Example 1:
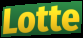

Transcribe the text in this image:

Lotte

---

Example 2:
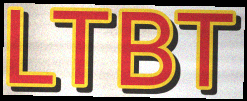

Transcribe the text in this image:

LTBT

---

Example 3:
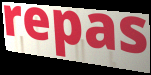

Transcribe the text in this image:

repas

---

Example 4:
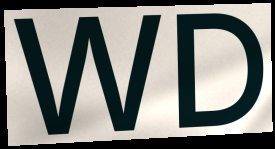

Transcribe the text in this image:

WD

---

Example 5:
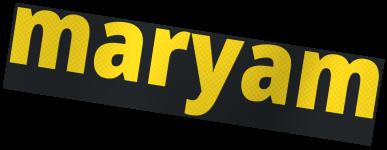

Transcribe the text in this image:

maryam